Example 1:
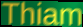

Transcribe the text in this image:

Thiam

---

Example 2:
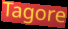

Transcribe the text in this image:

Tagore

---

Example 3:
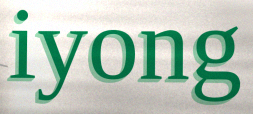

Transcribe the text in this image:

iyong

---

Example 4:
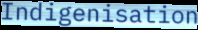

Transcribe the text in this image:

Indigenisation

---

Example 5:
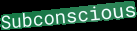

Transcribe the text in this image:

Subconscious